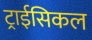
ट्राईसिकल